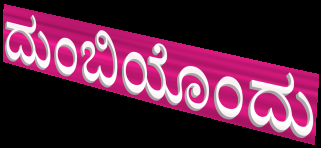
ದುಂಬಿಯೊಂದು